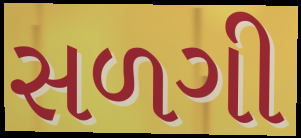
સળગી